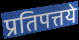
प्रतिपत्तये